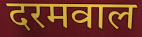
दरमवाल